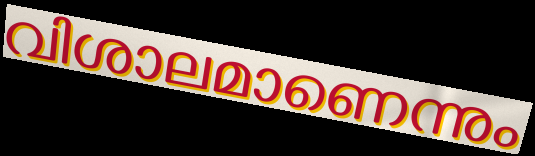
വിശാലമാണെന്നും